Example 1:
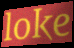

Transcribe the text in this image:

loke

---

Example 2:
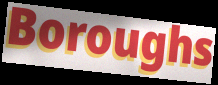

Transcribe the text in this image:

Boroughs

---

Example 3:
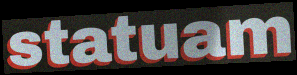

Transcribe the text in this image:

statuam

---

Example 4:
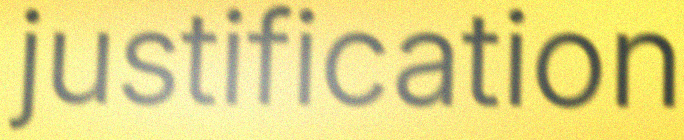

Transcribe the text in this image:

justification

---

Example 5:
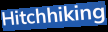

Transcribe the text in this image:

Hitchhiking